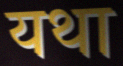
यथा